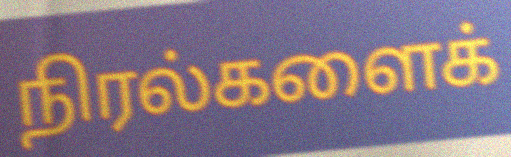
நிரல்களைக்